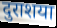
दुराशया